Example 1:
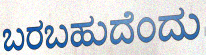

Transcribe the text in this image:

ಬರಬಹುದೆಂದು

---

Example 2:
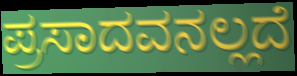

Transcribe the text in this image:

ಪ್ರಸಾದವನಲ್ಲದೆ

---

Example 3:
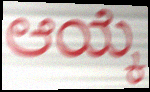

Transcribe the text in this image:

ಆಯ್ಕೆ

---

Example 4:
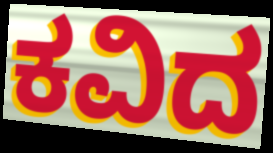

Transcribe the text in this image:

ಕವಿದ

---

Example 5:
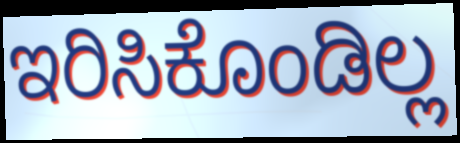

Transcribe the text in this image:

ಇರಿಸಿಕೊಂಡಿಲ್ಲ